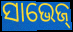
ସାଭେଜ୍